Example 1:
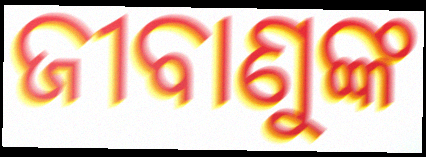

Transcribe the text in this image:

ଜୀବାଣୁଙ୍କ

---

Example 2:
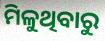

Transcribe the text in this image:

ମିଳୁଥିବାରୁ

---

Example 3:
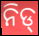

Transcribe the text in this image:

ନିଡ୍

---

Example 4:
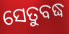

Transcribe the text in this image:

ସେତୁବଦ୍ଧ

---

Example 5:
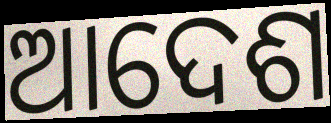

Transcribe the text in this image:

ଆଦେଶ